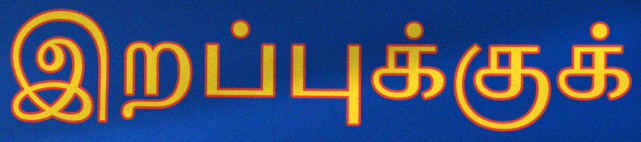
இறப்புக்குக்